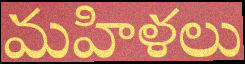
మహిళలు